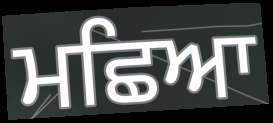
ਮਛਿਆ